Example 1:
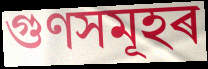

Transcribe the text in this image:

গুণসমূহৰ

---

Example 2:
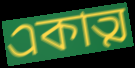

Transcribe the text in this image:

একাত্ম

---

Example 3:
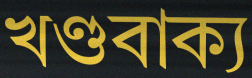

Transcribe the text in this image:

খণ্ডবাক্য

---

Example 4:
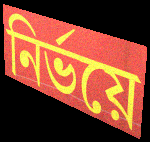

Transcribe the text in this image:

নিৰ্ভয়ে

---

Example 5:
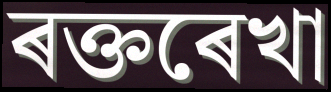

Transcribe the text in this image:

ৰক্তৰেখা